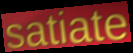
satiate